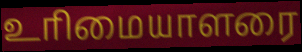
உரிமையாளரை